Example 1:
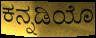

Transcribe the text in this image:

ಕನ್ನಡಿಯೊ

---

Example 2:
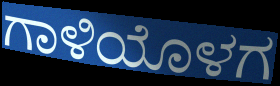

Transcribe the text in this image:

ಗಾಳಿಯೊಳಗ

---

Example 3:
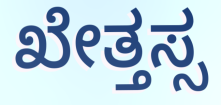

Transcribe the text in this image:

ಖೇತ್ತಸ್ಸ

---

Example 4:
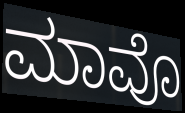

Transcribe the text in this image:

ಮಾವೊ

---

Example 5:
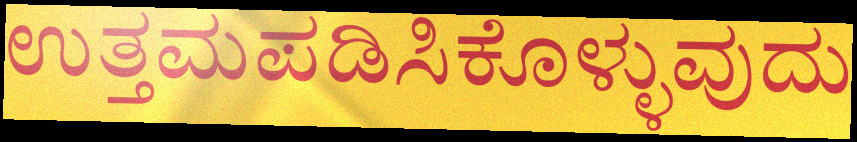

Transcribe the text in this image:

ಉತ್ತಮಪಡಿಸಿಕೊಳ್ಳುವುದು